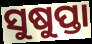
ସୁଷୁପ୍ତା